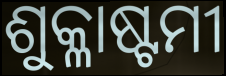
ଶୁକ୍ଳାଷ୍ଟମୀ